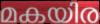
മകയിര